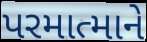
પરમાત્માને